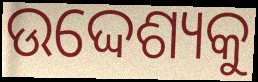
ଉଦ୍ଦେଶ୍ୟକୁ